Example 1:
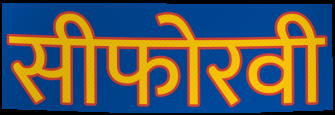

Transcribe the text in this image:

सीफोरवी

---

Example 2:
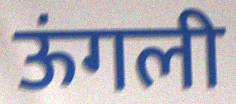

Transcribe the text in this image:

ऊंगली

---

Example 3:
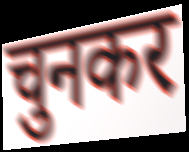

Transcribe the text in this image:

चुनकर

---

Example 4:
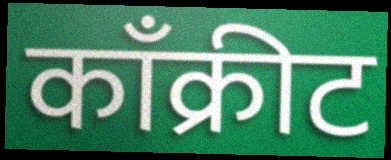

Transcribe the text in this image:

काँक्रीट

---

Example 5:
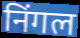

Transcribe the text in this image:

निंगल